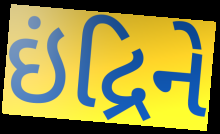
ઇંદ્રિને